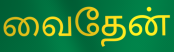
வைதேன்